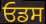
ਓਡਸ